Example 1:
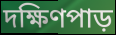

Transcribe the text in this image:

দক্ষিণপাড়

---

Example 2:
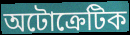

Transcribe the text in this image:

অটোক্রেটিক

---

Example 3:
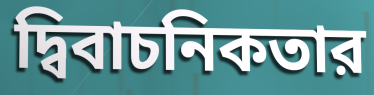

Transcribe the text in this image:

দ্বিবাচনিকতার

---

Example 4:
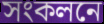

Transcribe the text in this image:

সংকলনে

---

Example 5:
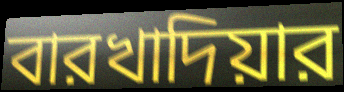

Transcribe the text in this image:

বারখাদিয়ার